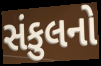
સંકુલનો